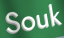
Souk